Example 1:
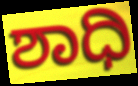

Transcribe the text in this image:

ಶಾಧಿ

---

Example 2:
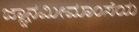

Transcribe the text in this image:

ಜ್ಞಾನಮೀಮಾಂಸೆಯ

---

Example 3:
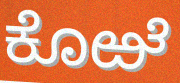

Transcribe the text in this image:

ಕೊಱೆ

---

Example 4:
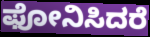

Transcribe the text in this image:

ಫೋನಿಸಿದರೆ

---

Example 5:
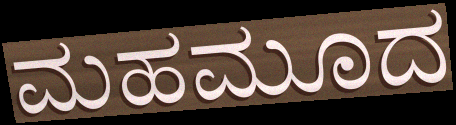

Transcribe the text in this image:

ಮಹಮೂದ